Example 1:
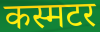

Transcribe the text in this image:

कस्मटर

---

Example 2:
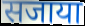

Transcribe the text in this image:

सजाया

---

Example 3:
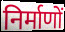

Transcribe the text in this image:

निर्माणों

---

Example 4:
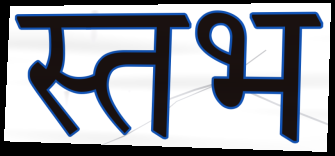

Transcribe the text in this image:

स्तभ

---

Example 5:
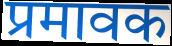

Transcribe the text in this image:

प्रमावक